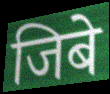
जिबे